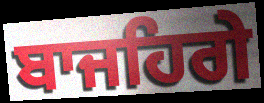
ਬਾਜਹਿਗੇ